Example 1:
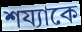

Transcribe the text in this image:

শয্যাকে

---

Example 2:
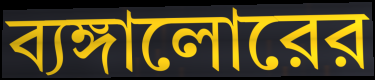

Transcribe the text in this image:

ব্যঙ্গালোরের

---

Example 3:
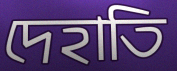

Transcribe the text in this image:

দেহাতি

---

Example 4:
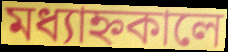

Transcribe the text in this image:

মধ্যাহ্নকালে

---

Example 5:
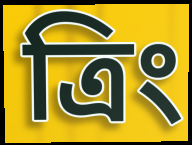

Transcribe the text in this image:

ত্রিং